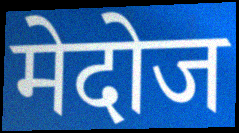
मेदोज